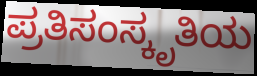
ಪ್ರತಿಸಂಸ್ಕೃತಿಯ